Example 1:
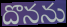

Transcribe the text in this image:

దొనను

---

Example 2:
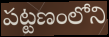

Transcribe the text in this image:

పట్టణంలోని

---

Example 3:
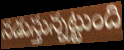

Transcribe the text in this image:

నడుస్తున్నట్టుంది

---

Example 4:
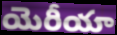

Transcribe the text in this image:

యెరీయా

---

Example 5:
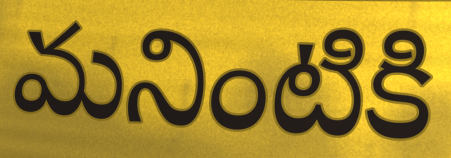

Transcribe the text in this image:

మనింటికి